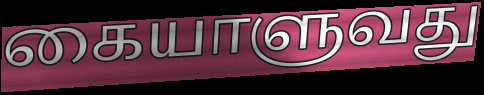
கையாளுவது